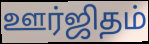
ஊர்ஜிதம்